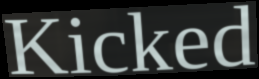
Kicked